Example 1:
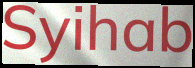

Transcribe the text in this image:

Syihab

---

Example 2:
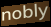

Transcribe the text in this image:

nobly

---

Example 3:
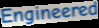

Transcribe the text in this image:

Engineered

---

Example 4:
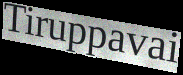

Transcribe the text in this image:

Tiruppavai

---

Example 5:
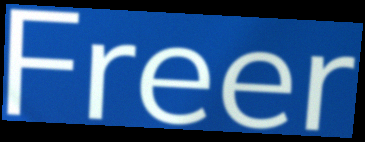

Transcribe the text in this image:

Freer